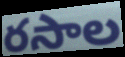
రసాల